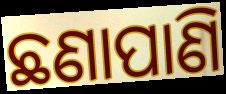
ଛଣାପାଣି